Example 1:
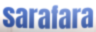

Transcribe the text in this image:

sarafara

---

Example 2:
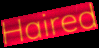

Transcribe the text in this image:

Haired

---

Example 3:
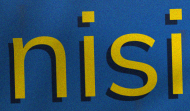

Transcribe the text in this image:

nisi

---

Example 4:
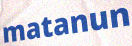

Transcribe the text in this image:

matanun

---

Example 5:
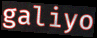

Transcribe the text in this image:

galiyo